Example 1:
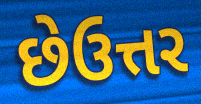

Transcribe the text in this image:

છેઉત્તર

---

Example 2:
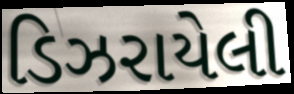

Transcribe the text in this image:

ડિઝરાયેલી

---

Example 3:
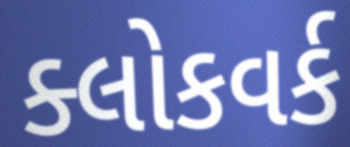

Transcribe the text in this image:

ક્લોકવર્ક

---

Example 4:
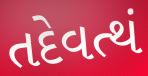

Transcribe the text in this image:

તદેવત્થં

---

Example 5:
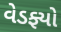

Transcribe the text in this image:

વેડફ્યો